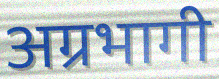
अग्रभागी